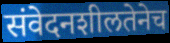
संवेदनशीलतेनेच